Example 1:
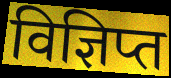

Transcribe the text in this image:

विज्ञिप्त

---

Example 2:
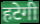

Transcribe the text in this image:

हटेगी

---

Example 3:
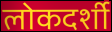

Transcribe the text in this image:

लोकदर्शी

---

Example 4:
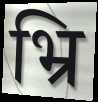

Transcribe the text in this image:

भ्रि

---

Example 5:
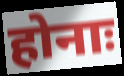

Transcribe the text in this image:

होनाः